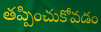
తప్పించుకోవడం